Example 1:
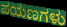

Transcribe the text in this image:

ಪಯಣಗಳು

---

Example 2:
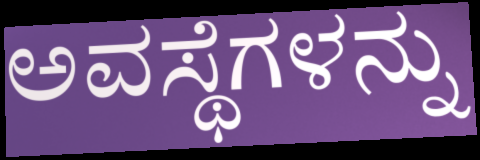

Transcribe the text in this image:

ಅವಸ್ಥೆಗಳನ್ನು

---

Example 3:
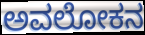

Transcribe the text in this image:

ಅವಲೋಕನ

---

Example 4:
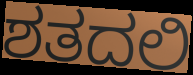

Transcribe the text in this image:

ಶತದಲಿ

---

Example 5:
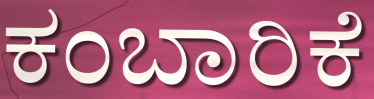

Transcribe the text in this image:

ಕಂಬಾರಿಕೆ